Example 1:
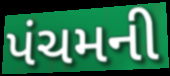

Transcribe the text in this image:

પંચમની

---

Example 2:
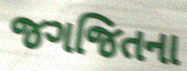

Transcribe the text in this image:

જગજિતના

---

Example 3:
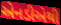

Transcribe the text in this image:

એનડીએથી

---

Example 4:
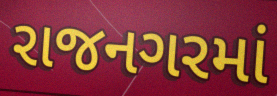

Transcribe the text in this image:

રાજનગરમાં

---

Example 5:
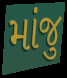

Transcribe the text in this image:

માંજુ